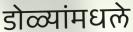
डोळ्यांमधले